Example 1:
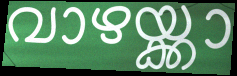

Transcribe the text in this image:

വാഴയ്ക്കാ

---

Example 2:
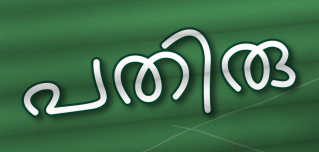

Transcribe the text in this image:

പതിരു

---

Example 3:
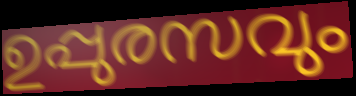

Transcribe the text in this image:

ഉപ്പുരസവും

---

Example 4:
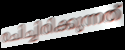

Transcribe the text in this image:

രചിച്ചിരിക്കുന്നത്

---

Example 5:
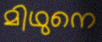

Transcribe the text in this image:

മിഥുനെ